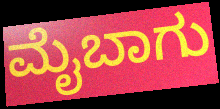
ಮೈಬಾಗು